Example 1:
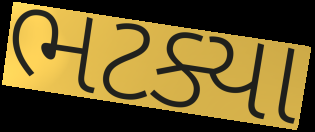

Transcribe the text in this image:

ભટક્યા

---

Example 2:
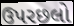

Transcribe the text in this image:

ઉપરછલો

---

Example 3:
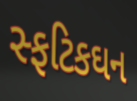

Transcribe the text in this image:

સ્ફટિકઘન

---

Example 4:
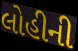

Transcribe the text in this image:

લોહીની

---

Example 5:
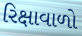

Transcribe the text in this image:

રિક્ષાવાળો